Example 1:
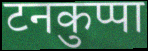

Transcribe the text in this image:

टनकुप्पा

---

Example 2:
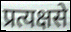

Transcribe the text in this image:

प्रत्यक्षसे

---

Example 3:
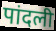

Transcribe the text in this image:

पांदली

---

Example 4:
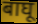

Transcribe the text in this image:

बाघू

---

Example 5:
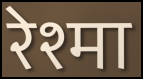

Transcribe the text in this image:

रेश्मा